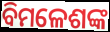
ବିମଳେଶଙ୍କ